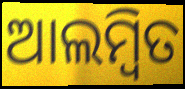
ଆଲମ୍ୱିତ